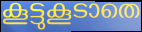
കൂട്ടുകൂടാതെ